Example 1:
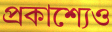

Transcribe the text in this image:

প্রকাশ্যেও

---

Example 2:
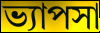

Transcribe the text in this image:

ভ্যাপসা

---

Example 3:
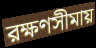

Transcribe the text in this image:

রক্ষণসীমায়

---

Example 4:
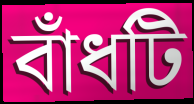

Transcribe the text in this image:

বাঁধটি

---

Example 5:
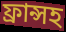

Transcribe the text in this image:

ফ্রান্সহ